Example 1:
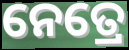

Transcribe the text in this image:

ନେତ୍ରେ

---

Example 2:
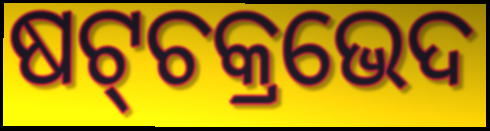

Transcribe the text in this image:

ଷଟ୍‌ଚକ୍ରଭେଦ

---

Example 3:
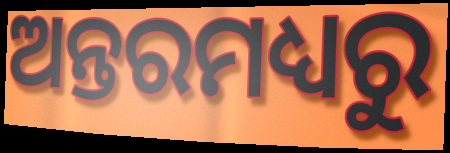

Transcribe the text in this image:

ଅନ୍ତରମଧ୍ୟରୁ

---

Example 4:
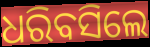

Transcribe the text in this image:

ଧରିବସିଲେ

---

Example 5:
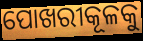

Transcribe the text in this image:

ପୋଖରୀକୂଳକୁ